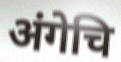
अंगेचि